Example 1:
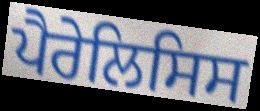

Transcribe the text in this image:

ਪੈਰੇਲਿਸਿਸ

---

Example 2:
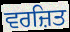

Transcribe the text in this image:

ਵਰਜ਼ਿਤ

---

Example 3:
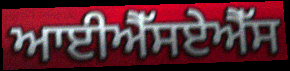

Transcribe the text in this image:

ਆਈਐੱਸਏਐੱਸ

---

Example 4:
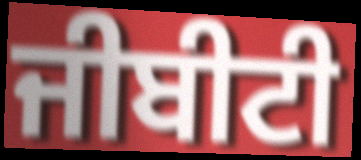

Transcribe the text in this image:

ਜੀਬੀਟੀ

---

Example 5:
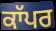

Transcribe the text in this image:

ਕਾੱਪਰ